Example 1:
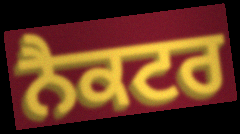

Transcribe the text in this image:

ਨੈਕਟਰ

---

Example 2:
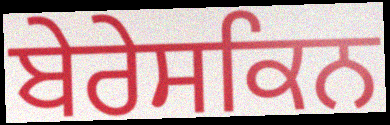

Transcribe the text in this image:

ਬੇਰੇਸਕਿਨ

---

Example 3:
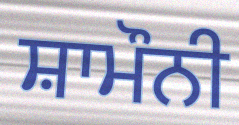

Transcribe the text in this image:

ਸ਼ਾਮੌਨੀ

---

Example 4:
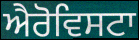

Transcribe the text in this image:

ਐਰੋਵਿਸਟਾ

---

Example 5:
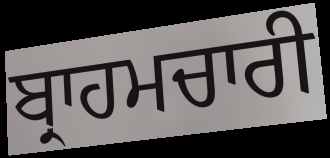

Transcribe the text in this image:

ਬ੍ਰਾਹਮਚਾਰੀ